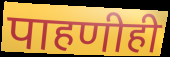
पाहणीही